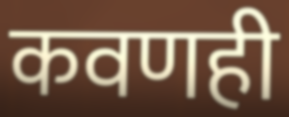
कवणही